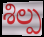
శిల్ప